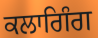
ਕਲਾਗਿੰਗ